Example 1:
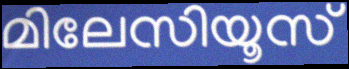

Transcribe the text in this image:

മിലേസിയൂസ്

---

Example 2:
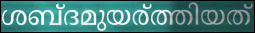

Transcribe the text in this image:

ശബ്ദമുയര്ത്തിയത്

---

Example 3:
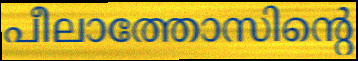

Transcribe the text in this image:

പീലാത്തോസിന്റെ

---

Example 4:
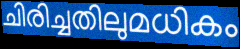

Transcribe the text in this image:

ചിരിച്ചതിലുമധികം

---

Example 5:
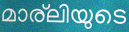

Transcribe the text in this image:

മാര്ലിയുടെ